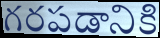
గరపడానికి